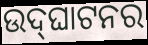
ଉଦ୍‌ଘାଟନର